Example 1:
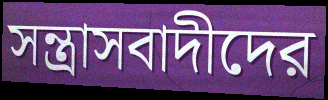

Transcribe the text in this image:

সন্ত্রাসবাদীদের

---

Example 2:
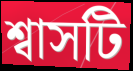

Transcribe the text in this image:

শ্বাসটি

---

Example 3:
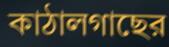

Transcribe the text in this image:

কাঠালগাছের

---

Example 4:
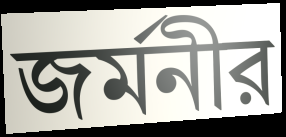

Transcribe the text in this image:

জর্মনীর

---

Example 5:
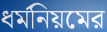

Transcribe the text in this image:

ধর্মনিয়মের